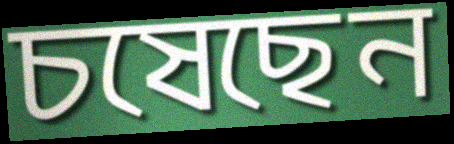
চষেছেন